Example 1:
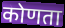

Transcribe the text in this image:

कोणता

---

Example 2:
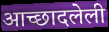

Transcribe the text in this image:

आच्छादलेली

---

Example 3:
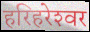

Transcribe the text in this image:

हरिहरेश्वर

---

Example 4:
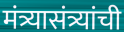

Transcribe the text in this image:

मंत्र्यासंत्र्यांची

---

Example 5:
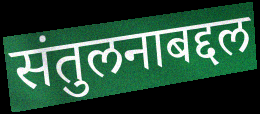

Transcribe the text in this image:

संतुलनाबद्दल